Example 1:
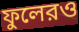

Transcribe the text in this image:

ফুলেরও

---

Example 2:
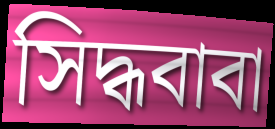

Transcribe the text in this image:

সিদ্ধবাবা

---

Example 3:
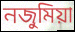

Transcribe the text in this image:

নজুমিয়া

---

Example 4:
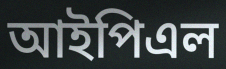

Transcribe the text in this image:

আইপিএল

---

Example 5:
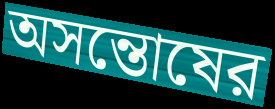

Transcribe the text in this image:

অসন্তোষের